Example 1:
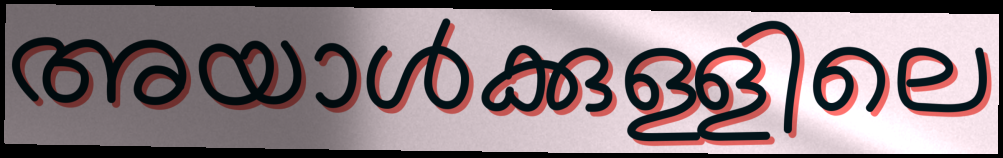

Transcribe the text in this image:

അയാൾക്കുള്ളിലെ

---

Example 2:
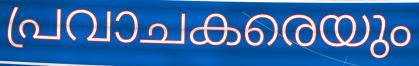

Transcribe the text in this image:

പ്രവാചകരെയും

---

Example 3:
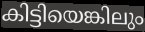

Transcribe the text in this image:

കിട്ടിയെങ്കിലും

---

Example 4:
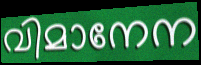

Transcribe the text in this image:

വിമാനേന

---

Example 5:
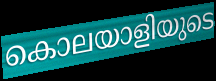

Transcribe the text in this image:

കൊലയാളിയുടെ